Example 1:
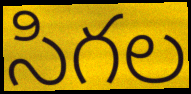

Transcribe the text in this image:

సిగల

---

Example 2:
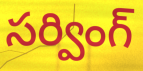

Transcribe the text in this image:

సర్వింగ్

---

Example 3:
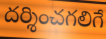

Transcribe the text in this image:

దర్శించగలిగే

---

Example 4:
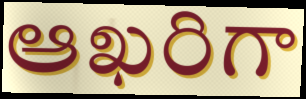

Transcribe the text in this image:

ఆఖరిగా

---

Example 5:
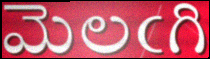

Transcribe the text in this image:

మెలఁగి